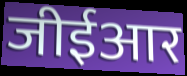
जीईआर